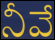
నీవే